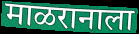
माळरानाला